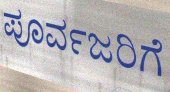
ಪೂರ್ವಜರಿಗೆ